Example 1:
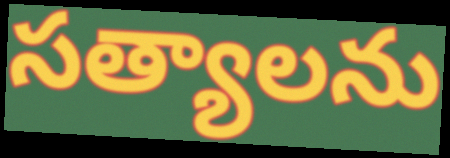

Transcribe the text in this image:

సత్యాలను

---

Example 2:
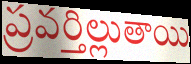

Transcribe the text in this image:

ప్రవర్తిల్లుతాయి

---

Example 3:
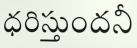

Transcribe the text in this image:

ధరిస్తుందనీ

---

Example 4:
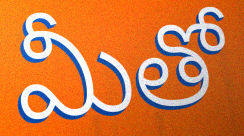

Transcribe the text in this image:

మీతో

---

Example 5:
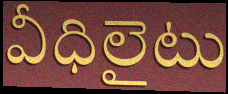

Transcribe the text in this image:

వీధిలైటు